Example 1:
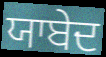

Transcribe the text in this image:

ਯਾਬੇਦ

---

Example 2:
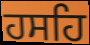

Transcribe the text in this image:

ਹਸਹਿ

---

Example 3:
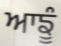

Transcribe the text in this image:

ਆਙੂੰ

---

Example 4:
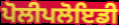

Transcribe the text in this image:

ਪੋਲੀਪਲੋਇਡੀ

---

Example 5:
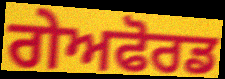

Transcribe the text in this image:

ਗੇਅਫੋਰਡ